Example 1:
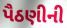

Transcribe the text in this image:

પૈઠણીની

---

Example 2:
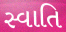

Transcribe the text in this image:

સ્વાતિ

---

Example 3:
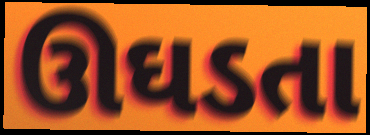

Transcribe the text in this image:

ઊઘડતા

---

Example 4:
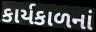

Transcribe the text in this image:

કાર્યકાળનાં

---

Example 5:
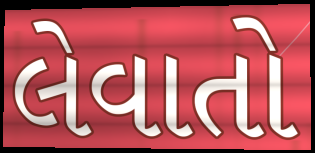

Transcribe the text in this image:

લેવાતો